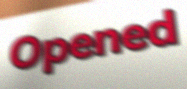
Opened